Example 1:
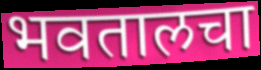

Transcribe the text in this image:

भवतालचा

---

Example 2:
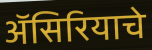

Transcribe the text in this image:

ॲसिरियाचे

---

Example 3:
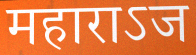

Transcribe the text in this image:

महाराऽज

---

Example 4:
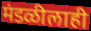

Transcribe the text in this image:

मंडळीलाही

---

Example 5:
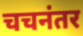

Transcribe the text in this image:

चचनंतर